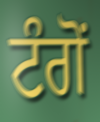
ਟੰਗੋਂ